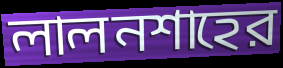
লালনশাহের